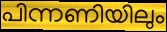
പിന്നണിയിലും